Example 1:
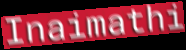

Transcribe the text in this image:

Inaimathi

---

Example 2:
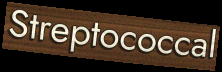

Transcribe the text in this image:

Streptococcal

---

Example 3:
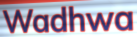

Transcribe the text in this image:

Wadhwa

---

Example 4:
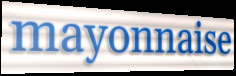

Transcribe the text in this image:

mayonnaise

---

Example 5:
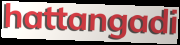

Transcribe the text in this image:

hattangadi